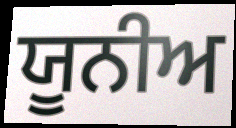
ਯੂਨੀਅ